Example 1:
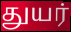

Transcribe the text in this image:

துயர்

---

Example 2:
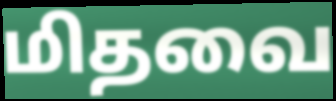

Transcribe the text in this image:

மிதவை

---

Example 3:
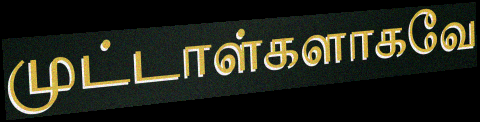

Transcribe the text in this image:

முட்டாள்களாகவே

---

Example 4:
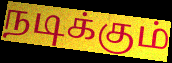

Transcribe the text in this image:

நடிக்கும்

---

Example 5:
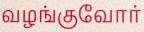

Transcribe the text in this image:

வழங்குவோர்